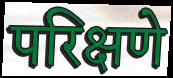
परिक्षणे